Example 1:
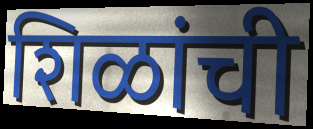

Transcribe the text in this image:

शिळांची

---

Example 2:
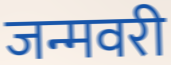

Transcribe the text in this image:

जन्मवरी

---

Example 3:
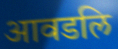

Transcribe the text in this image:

आवडलि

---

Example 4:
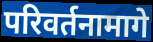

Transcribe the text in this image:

परिवर्तनामागे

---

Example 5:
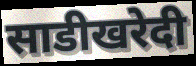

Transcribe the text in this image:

साडीखरेदी